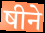
षीने